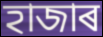
হাজাৰ